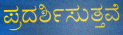
ಪ್ರದರ್ಶಿಸುತ್ತವೆ